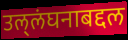
उल्लंघनाबद्दल